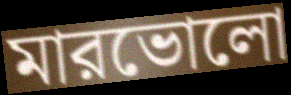
মারভোলো